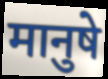
मानुषे